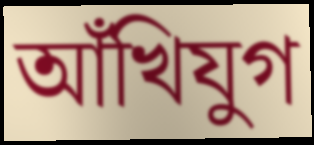
আঁখিযুগ